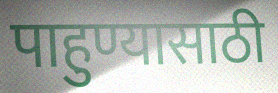
पाहुण्यासाठी